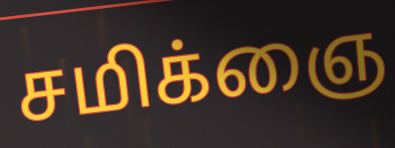
சமிக்ஞை